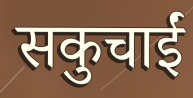
सकुचाईं